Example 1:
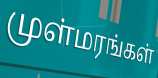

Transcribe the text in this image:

முள்மரங்கள்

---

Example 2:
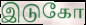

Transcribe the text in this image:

இடுகோ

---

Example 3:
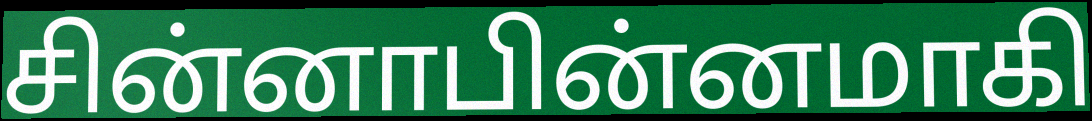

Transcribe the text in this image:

சின்னாபின்னமாகி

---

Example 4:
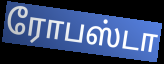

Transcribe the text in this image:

ரோபஸ்டா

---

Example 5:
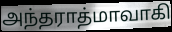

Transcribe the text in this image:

அந்தராத்மாவாகி